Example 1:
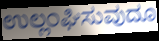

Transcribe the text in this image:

ಉಲ್ಲಂಘಿಸುವುದೂ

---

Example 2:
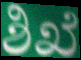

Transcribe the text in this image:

ಶಿಖೆ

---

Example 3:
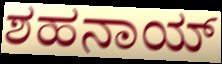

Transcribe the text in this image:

ಶಹನಾಯ್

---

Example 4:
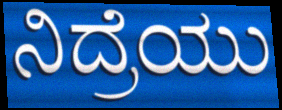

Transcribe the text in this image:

ನಿದ್ರೆಯು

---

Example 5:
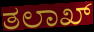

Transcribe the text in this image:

ತಲಾಖ್